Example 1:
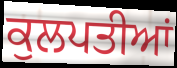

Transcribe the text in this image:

ਕੁਲਪਤੀਆਂ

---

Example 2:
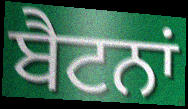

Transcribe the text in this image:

ਬੈਟਨਾਂ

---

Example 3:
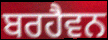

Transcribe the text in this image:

ਬਰਹੈਵਨ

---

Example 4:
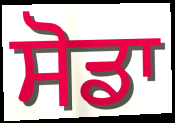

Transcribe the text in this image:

ਸੋਡਾ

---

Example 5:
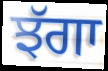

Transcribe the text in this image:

ਝੱਗਾ